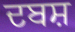
ਦਬਸ਼